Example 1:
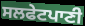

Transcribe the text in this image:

ਸਲਫੇਟਪਾਣੀ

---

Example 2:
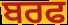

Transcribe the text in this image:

ਬਰਫ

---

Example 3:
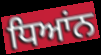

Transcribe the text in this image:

ਧਿਆਂਨ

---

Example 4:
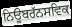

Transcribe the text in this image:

ਨਿਊਬਰੱਨਸਵਿਕ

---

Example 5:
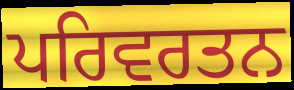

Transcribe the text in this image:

ਪਰਿਵਰਤਨ